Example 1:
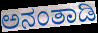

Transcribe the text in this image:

ಅನಂತಾಡಿ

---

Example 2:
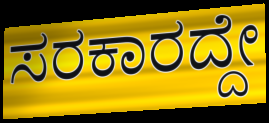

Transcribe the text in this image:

ಸರಕಾರದ್ದೇ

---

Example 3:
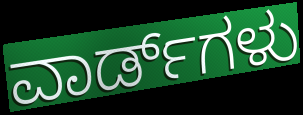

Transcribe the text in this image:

ವಾರ್ಡ್‌ಗಳು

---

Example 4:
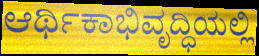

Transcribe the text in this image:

ಆರ್ಥಿಕಾಭಿವೃದ್ಧಿಯಲ್ಲಿ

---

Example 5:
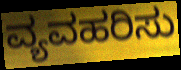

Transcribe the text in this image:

ವ್ಯವಹರಿಸು